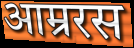
आम्ररस